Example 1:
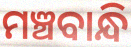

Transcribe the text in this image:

ମଞ୍ଚବାନ୍ଧି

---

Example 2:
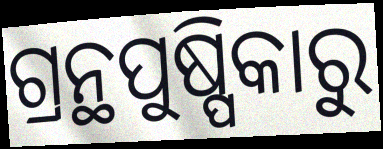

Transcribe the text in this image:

ଗ୍ରନ୍ଥପୁଷ୍ପିକାରୁ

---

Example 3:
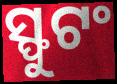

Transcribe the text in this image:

ସ୍ଫୁଟଂ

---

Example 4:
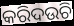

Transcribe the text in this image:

କରିଦଉଚି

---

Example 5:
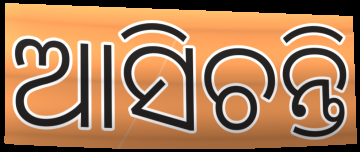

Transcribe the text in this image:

ଆସିଚନ୍ତି